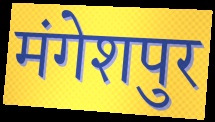
मंगेशपुर